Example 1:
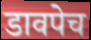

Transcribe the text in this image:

डावपेच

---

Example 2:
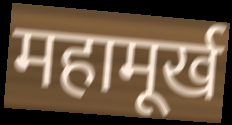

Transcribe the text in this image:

महामूर्ख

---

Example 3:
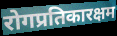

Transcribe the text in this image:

रोगप्रतिकारक्षम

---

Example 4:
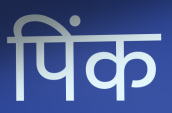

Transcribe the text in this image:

पिंक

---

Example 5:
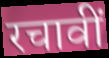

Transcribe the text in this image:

रचावीं